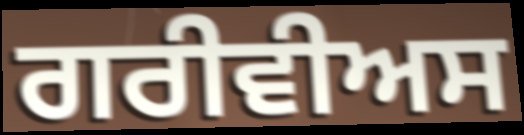
ਗਰੀਵੀਅਸ